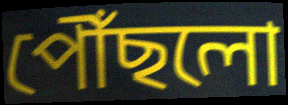
পৌঁছলো